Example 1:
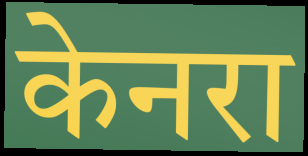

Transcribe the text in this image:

केनरा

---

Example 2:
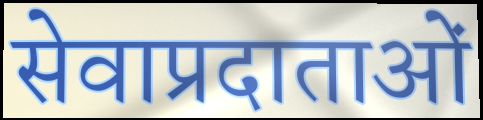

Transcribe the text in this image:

सेवाप्रदाताओं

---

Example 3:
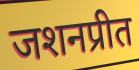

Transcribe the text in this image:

जशनप्रीत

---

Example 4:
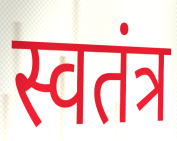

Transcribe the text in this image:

स्वतंत्र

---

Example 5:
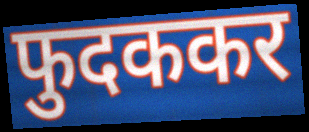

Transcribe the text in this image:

फुदककर